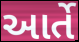
આર્તે